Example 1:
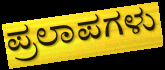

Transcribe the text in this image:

ಪ್ರಲಾಪಗಳು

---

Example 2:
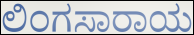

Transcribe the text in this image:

ಲಿಂಗಸಾರಾಯ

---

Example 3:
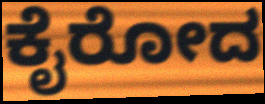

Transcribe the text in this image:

ಕೈರೋದ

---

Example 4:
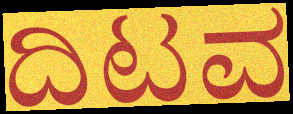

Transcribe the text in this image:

ದಿಟವ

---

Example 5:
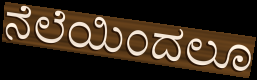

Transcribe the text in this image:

ನೆಲೆಯಿಂದಲೂ